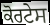
ਕੋਰਟੇਸ